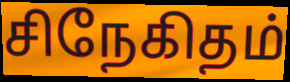
சிநேகிதம்